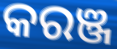
କରଞ୍ଜ